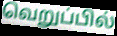
வெறுப்பில்